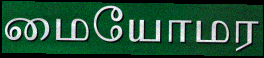
மையோமர